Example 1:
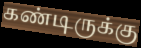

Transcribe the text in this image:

கண்டிருக்கு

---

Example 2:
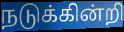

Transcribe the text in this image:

நடுக்கின்றி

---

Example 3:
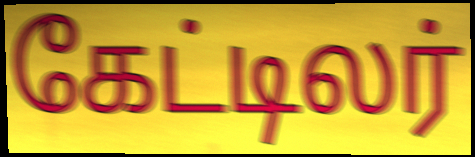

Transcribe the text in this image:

கேட்டிலர்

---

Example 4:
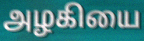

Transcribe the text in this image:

அழகியை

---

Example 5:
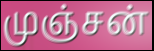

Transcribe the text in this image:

முஞ்சன்